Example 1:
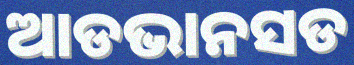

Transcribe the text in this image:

ଆଡଭାନସଡ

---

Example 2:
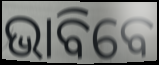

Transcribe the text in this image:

ଭାବିବେ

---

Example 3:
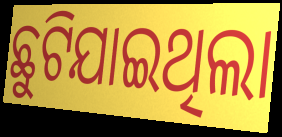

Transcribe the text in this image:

ଛୁଟିଯାଇଥିଲା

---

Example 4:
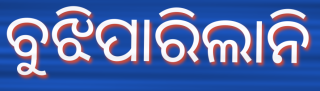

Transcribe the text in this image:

ବୁଝିପାରିଲାନି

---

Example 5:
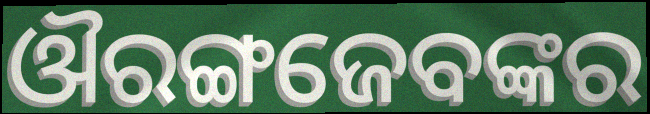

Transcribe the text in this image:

ଔରଙ୍ଗଜେବଙ୍କର